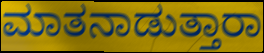
ಮಾತನಾಡುತ್ತಾರಾ